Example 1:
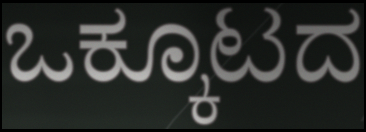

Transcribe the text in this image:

ಒಕ್ಕೂಟದ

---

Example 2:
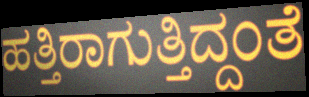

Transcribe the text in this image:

ಹತ್ತಿರಾಗುತ್ತಿದ್ದಂತೆ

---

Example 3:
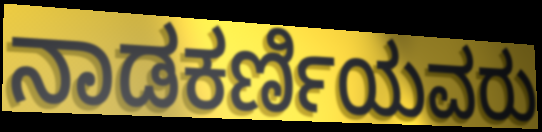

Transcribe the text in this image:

ನಾಡಕರ್ಣಿಯವರು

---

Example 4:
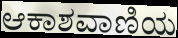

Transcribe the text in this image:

ಆಕಾಶವಾಣಿಯ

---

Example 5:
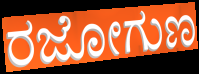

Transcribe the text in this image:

ರಜೋಗುಣ